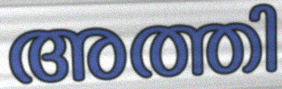
അത്തി